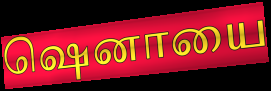
ஷெனாயை